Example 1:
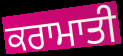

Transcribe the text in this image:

ਕਰਾਮਾਤੀ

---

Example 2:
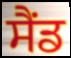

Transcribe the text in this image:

ਸੈਂਡ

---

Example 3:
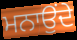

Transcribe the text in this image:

ਮਨਾਉਂਦੇ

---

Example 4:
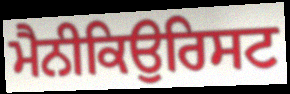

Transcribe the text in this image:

ਮੈਨੀਕਿਉਰਿਸਟ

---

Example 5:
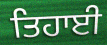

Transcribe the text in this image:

ਤਿਹਾਈ